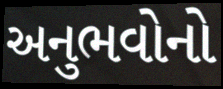
અનુભવોનો